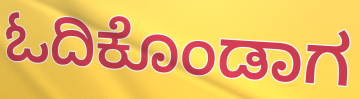
ಓದಿಕೊಂಡಾಗ